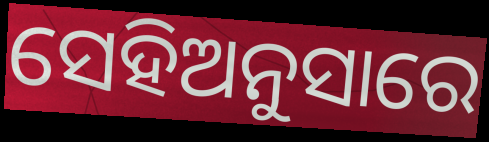
ସେହିଅନୁସାରେ